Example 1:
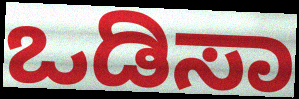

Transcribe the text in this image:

ಒಡಿಸಾ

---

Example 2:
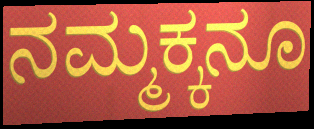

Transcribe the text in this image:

ನಮ್ಮಕ್ಕನೂ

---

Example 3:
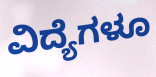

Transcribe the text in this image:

ವಿದ್ಯೆಗಳೂ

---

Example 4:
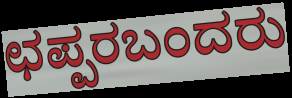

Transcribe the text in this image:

ಛಪ್ಪರಬಂದರು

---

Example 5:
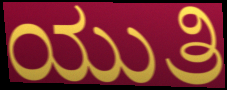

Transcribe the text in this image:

ಯುತಿ